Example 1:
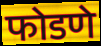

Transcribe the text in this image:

फोडणे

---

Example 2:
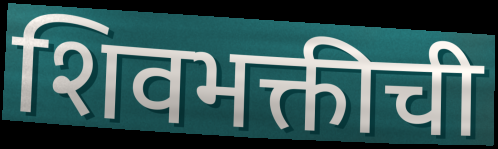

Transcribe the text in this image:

शिवभक्तीची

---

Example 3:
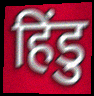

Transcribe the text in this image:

हिंडु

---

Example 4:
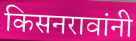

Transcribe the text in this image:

किसनरावांनी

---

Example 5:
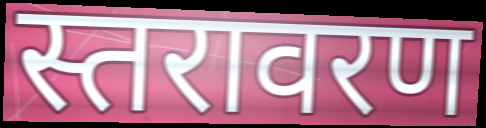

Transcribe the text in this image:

स्तरावरण